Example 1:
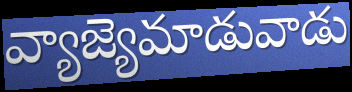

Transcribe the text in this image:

వ్యాజ్యెమాడువాడు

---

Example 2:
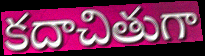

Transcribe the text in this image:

కదాచితుగా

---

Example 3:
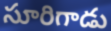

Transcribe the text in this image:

సూరిగాడు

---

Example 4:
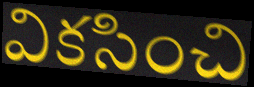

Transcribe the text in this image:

వికసించి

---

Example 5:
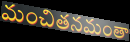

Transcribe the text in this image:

మంచితనమంతా